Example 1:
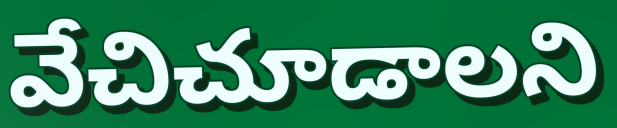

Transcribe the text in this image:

వేచిచూడాలని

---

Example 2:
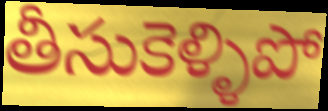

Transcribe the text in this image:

తీసుకెళ్ళిపో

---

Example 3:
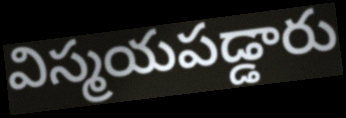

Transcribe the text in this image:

విస్మయపడ్డారు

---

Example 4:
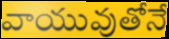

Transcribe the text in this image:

వాయువుతోనే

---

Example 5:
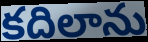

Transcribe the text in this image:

కదిలాను